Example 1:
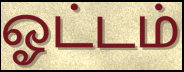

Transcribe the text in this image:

ஓட்டம்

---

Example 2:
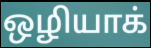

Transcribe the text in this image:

ஒழியாக்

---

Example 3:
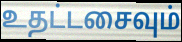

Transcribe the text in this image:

உதட்டசைவும்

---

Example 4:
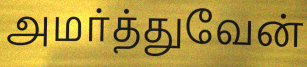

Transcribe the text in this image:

அமர்த்துவேன்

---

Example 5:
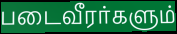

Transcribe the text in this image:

படைவீரர்களும்